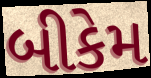
બીકેમ